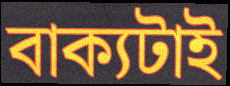
বাক্যটাই